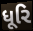
ધૂરિ